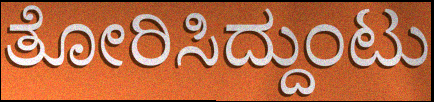
ತೋರಿಸಿದ್ದುಂಟು